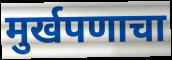
मुर्खपणाचा